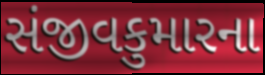
સંજીવકુમારના